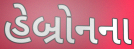
હેબ્રોનના